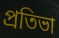
প্ৰতিভা